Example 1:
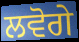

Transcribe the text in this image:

ਲਵੋਗੇ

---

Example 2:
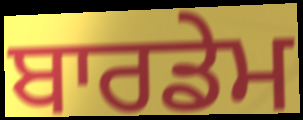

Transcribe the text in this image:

ਬਾਰਡੇਮ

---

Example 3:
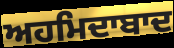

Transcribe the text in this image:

ਅਹਮਿਦਾਬਾਦ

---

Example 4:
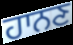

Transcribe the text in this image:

ਹਾਨਣ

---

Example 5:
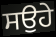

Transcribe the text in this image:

ਸਉਹੇ